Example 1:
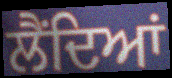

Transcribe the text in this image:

ਲੈਂਦਿਆਂ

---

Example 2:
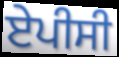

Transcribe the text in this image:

ਏਪੀਸੀ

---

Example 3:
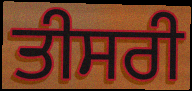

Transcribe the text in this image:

ਤੀਸਰੀ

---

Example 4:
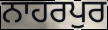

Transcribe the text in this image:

ਨਾਹਰਪੁਰ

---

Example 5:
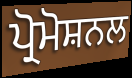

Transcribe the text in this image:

ਪ੍ਰੋਮੋਸ਼ਨਲ